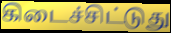
கிடைச்சிட்டுது